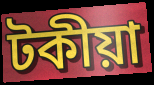
টকীয়া